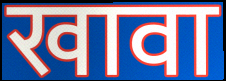
खावा